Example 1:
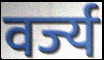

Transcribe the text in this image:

वर्ज्य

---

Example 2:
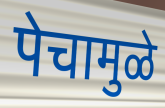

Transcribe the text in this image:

पेचामुळे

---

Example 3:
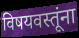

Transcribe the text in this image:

विषयवस्तूंना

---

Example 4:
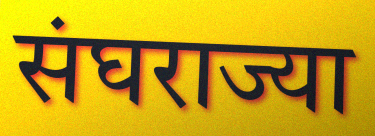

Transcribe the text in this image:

संघराज्या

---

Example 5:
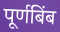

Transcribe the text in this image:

पूर्णबिंब